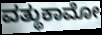
ವತ್ಥುಕಾಮೋ